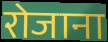
रोजाना